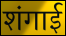
शंगाई